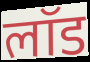
लॉड